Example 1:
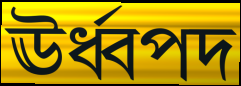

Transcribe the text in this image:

ঊর্ধ্বপদ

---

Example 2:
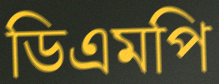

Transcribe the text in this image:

ডিএমপি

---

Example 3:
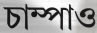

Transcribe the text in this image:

চাম্পাও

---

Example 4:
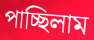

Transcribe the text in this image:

পাচ্ছিলাম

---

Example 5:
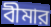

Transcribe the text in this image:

বীমার